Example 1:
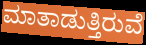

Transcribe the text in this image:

ಮಾತಾಡುತ್ತಿರುವೆ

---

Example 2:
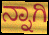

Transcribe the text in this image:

ನ್ನಾಗಿ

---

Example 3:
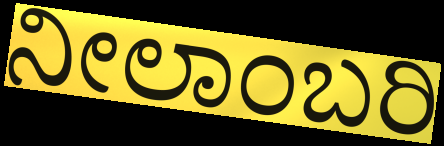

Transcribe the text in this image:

ನೀಲಾಂಬರಿ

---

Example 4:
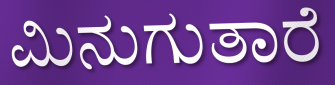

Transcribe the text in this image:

ಮಿನುಗುತಾರೆ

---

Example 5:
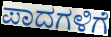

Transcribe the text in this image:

ಪಾದಗಳಿಗೆ